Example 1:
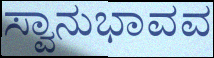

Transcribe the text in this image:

ಸ್ವಾನುಭಾವವ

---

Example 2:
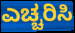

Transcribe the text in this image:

ಎಚ್ಚರಿಸಿ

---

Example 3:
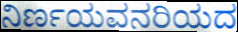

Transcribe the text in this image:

ನಿರ್ಣಯವನರಿಯದ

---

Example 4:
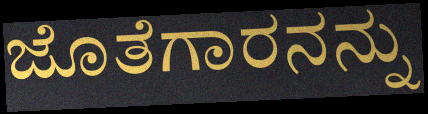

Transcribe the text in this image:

ಜೊತೆಗಾರನನ್ನು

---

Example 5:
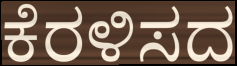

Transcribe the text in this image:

ಕೆರಳಿಸದ